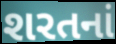
શરતનાં